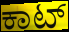
ಕಾಟ್